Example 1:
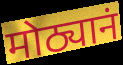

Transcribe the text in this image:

मोठ्यानं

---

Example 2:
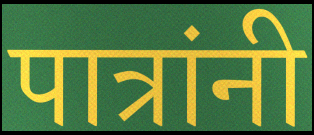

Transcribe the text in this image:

पात्रांनी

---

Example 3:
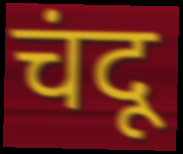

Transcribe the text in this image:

चंदू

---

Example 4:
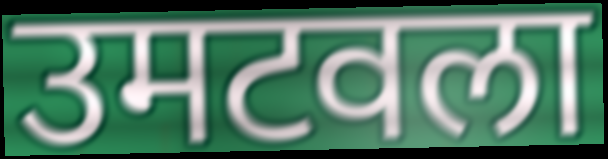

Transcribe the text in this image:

उमटवला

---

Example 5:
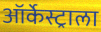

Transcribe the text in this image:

ऑर्केस्ट्राला